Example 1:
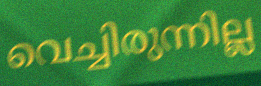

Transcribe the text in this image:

വെച്ചിരുന്നില്ല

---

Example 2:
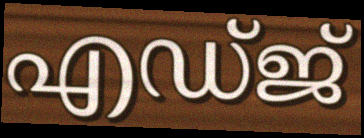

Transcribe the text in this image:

എഡ്ജ്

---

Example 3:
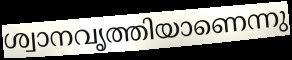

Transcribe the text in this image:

ശ്വാനവൃത്തിയാണെന്നു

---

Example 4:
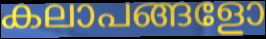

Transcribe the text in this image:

കലാപങ്ങളോ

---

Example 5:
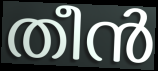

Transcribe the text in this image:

തീൻ